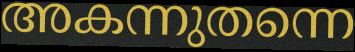
അകന്നുതന്നെ